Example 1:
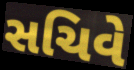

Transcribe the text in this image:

સચિવે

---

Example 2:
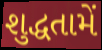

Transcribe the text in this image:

શુદ્ધતામેં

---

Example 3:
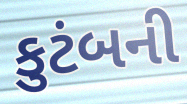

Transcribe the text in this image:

કુટંબની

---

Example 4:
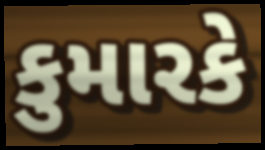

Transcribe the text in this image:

કુમારકે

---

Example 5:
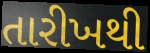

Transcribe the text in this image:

તારીખથી